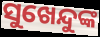
ସୁଖେନ୍ଦୁଙ୍କ